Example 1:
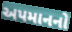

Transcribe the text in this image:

અપમાનનો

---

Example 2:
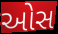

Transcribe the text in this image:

ઓસ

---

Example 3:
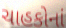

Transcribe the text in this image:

ચાહકોનાં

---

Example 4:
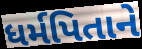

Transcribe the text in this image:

ધર્મપિતાને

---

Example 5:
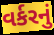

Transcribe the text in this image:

વર્કરનું